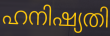
ഹനിഷ്യതി